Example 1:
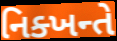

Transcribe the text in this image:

નિક્ખન્તે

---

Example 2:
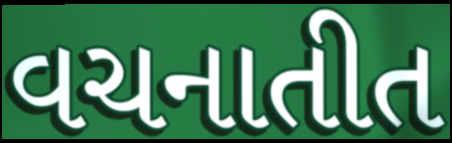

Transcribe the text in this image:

વચનાતીત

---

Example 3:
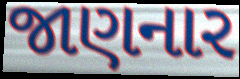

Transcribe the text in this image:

જાણનાર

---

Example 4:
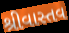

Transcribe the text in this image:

શ્રીવાસ્તવ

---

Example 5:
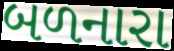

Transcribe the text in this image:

બળનારા